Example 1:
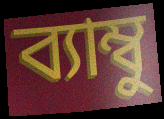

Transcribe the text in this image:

ব্যাম্বু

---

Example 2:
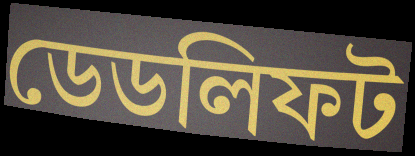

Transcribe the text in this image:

ডেডলিফট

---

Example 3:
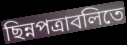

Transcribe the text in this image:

ছিন্নপত্রাবলিতে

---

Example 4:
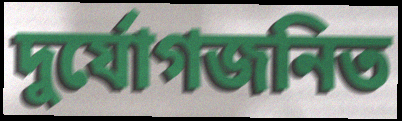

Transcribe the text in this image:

দুর্যোগজনিত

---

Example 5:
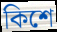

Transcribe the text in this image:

কিশে